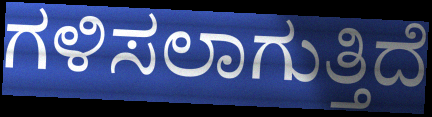
ಗಳಿಸಲಾಗುತ್ತಿದೆ